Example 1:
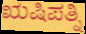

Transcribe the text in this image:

ಋಷಿಪತ್ನಿ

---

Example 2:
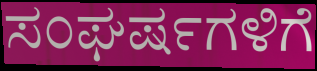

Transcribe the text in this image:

ಸಂಘರ್ಷಗಳಿಗೆ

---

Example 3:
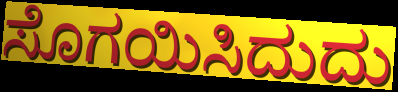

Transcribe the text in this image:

ಸೊಗಯಿಸಿದುದು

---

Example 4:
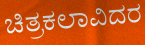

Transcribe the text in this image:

ಚಿತ್ರಕಲಾವಿದರ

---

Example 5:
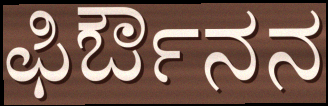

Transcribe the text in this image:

ಫಿರ್ಔನನ